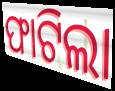
ଫାଟିଲା